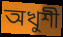
অখুশী